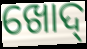
ଖୋଦ୍